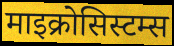
माइक्रोसिस्टम्स